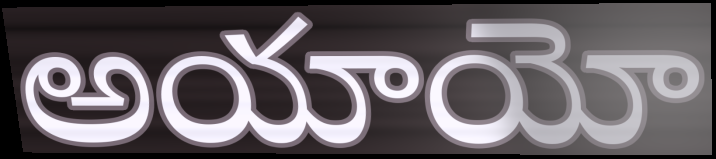
అయాయో